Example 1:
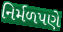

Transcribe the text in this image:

નિર્મળપણે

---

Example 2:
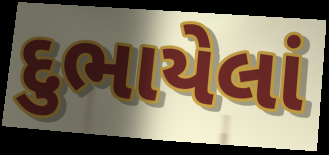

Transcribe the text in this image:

દુભાયેલાં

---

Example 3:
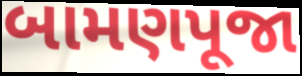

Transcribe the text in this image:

બામણપૂજા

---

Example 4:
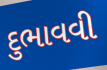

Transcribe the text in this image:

દુભાવવી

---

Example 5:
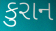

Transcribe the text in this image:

કુરાન